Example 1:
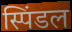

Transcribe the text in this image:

स्पिंडल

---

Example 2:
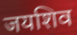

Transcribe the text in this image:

जयशिव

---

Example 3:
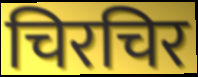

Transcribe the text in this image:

चिरचिर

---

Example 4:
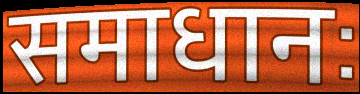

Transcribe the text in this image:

समाधानः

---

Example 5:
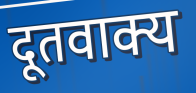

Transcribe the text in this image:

दूतवाक्य